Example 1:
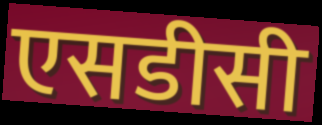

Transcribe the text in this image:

एसडीसी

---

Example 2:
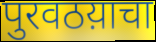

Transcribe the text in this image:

पुरवठय़ाचा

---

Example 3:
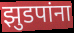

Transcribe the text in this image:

झुडपांना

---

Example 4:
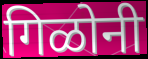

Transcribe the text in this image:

गिळोनी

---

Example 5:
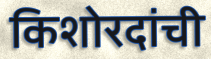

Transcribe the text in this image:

किशोरदांची